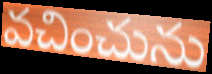
వచించును